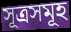
সূত্ৰসমূহ